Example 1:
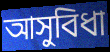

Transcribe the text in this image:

আসুবিধা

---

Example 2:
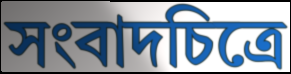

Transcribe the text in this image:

সংবাদচিত্রে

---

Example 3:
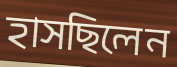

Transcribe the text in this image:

হাসছিলেন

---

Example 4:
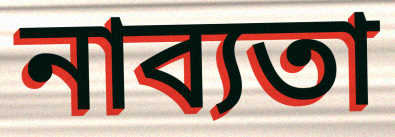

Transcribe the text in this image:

নাব্যতা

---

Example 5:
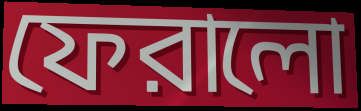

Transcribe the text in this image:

ফেরালো